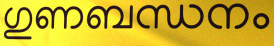
ഗുണബന്ധനം